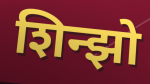
शिन्झो